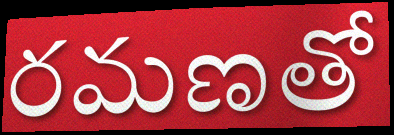
రమణతో